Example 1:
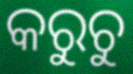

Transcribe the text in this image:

କରୁଚୁ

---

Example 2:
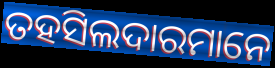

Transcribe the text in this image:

ତହସିଲଦାରମାନେ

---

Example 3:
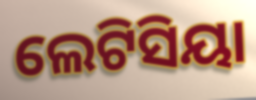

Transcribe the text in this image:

ଲେଟିସିୟା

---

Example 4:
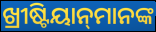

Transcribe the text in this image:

ଖ୍ରୀଷ୍ଟିୟାନ୍‌ମାନଙ୍କ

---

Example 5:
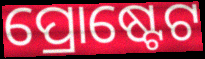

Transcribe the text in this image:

ପ୍ରୋଷ୍ଟେଟ